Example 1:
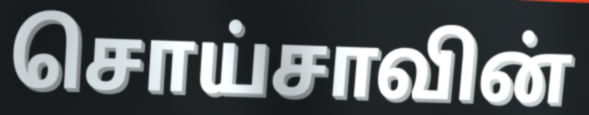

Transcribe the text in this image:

சொய்சாவின்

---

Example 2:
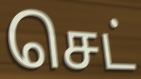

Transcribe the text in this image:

செட்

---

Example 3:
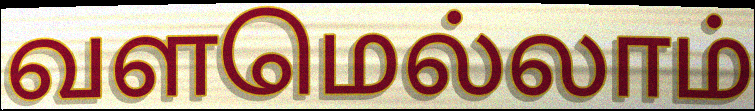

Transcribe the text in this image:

வளமெல்லாம்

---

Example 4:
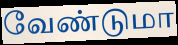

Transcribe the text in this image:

வேண்டுமா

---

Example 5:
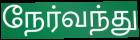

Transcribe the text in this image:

நேர்வந்து